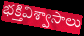
భక్తివిశ్వాసాలు